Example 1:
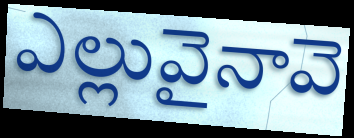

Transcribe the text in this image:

ఎల్లువైనావె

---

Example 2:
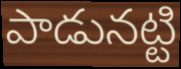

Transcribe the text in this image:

పాడునట్టి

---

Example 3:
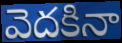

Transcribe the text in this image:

వెదకినా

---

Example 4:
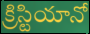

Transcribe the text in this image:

క్రిస్టియానో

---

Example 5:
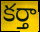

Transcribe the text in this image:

కర్తా